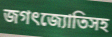
জগৎজ্যোতিসহ